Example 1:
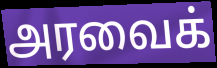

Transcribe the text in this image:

அரவைக்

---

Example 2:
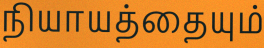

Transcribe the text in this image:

நியாயத்தையும்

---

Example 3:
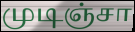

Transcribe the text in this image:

முடிஞ்சா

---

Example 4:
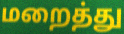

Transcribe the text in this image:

மறைத்து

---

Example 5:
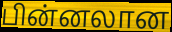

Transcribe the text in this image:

பின்னலான